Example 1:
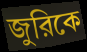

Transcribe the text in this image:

জুরিকে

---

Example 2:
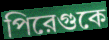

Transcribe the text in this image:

পিরেগুকে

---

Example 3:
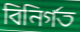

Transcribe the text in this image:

বিনির্গত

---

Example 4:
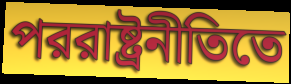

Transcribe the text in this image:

পররাষ্ট্রনীতিতে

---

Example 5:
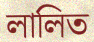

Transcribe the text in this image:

লালিত